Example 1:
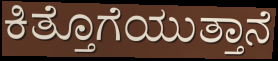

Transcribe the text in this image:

ಕಿತ್ತೊಗೆಯುತ್ತಾನೆ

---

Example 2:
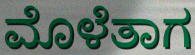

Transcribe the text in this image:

ಮೊಳೆತಾಗ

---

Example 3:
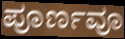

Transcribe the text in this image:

ಪೂರ್ಣವೂ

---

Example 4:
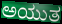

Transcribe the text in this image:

ಅಯುತ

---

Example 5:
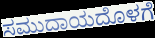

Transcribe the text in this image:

ಸಮುದಾಯದೊಳಗೆ